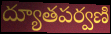
ద్యూతపర్వణి